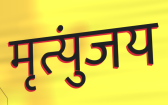
मृत्युंजय